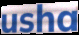
usha